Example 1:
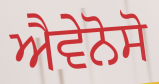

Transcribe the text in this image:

ਐਵੇਨੋਸੋ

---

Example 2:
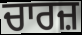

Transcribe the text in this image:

ਚਾਰਜ਼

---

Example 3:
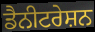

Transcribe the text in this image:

ਡੈਨੀਟਰੇਸ਼ਨ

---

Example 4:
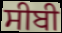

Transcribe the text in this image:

ਸੀਬੀ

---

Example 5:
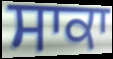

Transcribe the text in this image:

ਸਾਕਾ